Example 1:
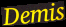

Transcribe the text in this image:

Demis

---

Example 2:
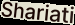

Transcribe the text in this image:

Shariati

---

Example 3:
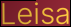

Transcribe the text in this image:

Leisa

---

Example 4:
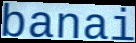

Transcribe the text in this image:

banai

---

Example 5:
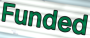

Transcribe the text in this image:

Funded